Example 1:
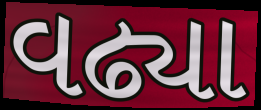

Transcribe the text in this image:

વઢ્યા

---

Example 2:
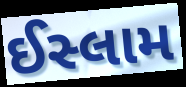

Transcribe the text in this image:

ઈસ્લામ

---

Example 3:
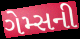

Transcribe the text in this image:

ગેમ્સની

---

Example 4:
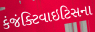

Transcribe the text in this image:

કંજંક્ટિવાઇટિસના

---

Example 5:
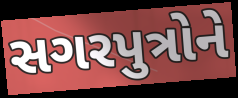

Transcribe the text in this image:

સગરપુત્રોને